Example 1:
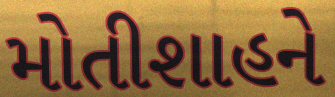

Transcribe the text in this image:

મોતીશાહને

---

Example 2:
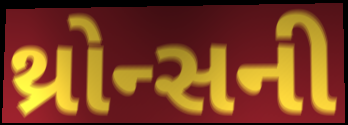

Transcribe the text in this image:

થ્રોન્સની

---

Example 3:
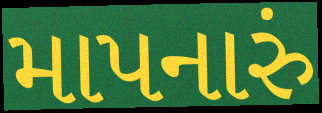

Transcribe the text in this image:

માપનારું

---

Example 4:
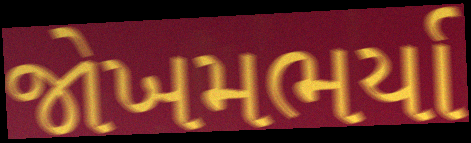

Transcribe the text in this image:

જોખમભર્યા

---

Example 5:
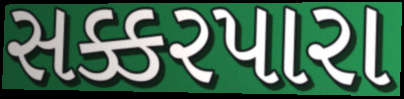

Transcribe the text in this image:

સક્કરપારા